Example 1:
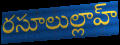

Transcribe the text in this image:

రసూలుల్లాహ్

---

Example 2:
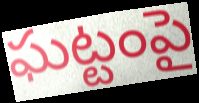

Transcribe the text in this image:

ఘట్టంపై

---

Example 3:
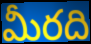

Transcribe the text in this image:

మీరది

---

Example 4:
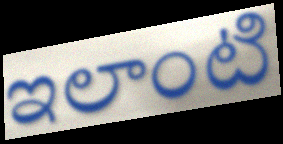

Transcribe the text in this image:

ఇలాంటి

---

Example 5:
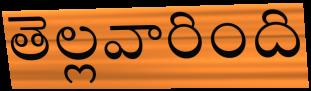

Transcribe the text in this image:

తెల్లవారింది